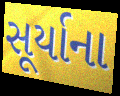
સૂર્યાના